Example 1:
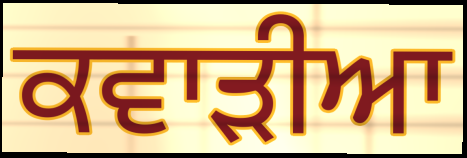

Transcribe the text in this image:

ਕਵਾੜੀਆ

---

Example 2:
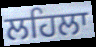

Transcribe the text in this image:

ਲਹਿਲਾ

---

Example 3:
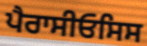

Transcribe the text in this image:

ਪੈਰਾਸੀਓਸਿਸ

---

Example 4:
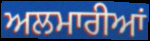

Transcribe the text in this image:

ਅਲਮਾਰੀਆਂ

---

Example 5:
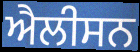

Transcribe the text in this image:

ਐਲੀਸਨ